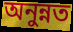
অনুন্নত